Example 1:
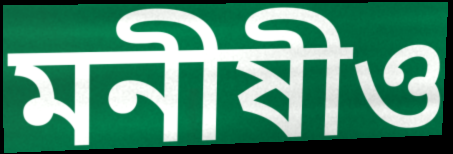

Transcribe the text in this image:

মনীষীও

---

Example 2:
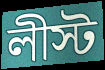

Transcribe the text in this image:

লীস্ট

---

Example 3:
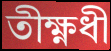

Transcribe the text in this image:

তীক্ষ্ণধী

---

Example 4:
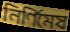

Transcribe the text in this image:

নির্ণিমেষ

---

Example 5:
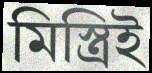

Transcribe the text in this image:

মিস্ত্রিই